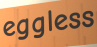
eggless